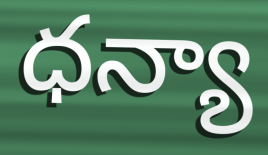
ధన్యా